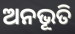
ଅନଭୂତି